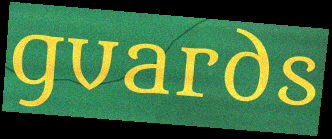
guards